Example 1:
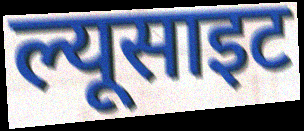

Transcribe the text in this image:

ल्यूसाइट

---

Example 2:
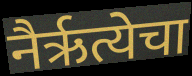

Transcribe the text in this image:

नैर्ऋत्येचा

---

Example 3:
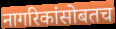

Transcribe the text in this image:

नागरिकांसोबतच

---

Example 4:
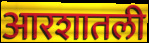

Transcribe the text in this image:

आरशातली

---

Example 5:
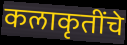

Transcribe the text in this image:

कलाकृतींचे